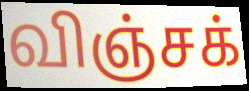
விஞ்சக்